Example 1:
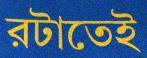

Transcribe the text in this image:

রটাতেই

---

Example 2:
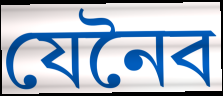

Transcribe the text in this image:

যেনৈব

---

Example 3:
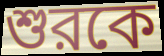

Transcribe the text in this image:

শুরকে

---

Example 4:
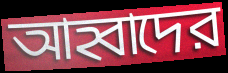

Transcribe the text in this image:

আহ্বাদের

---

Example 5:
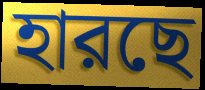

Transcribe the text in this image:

হারছে